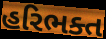
હરિભક્ત